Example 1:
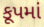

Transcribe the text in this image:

કૂપમાં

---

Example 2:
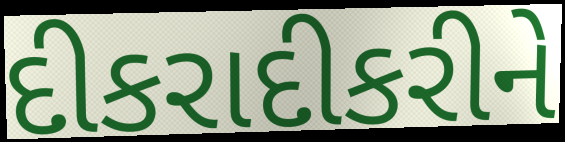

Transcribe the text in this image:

દીકરાદીકરીને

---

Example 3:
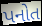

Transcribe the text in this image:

પનોત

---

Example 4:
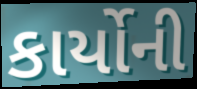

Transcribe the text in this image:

કાર્યોની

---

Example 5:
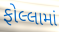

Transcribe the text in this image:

ફોલ્લામાં